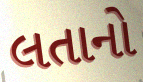
લતાનો